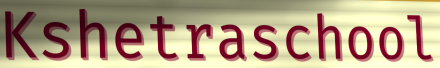
Kshetraschool